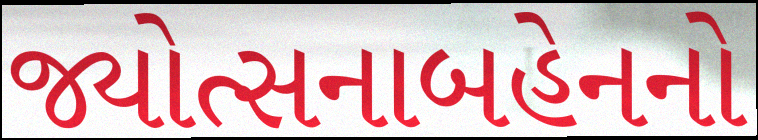
જ્યોત્સનાબહેનનો